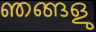
ഞങ്ങളു